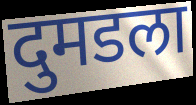
दुमडला